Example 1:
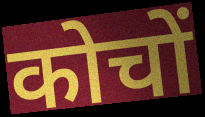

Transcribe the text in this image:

कोचों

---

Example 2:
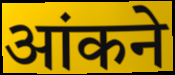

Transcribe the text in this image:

आंकने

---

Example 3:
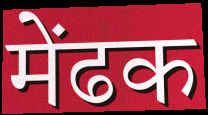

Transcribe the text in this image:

मेंढक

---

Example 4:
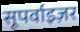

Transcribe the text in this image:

सूपर्वाइज़र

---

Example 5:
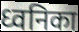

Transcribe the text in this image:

ध्वनिका